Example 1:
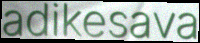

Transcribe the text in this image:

adikesava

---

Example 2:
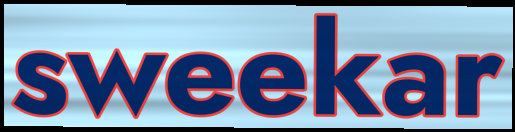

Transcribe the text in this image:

sweekar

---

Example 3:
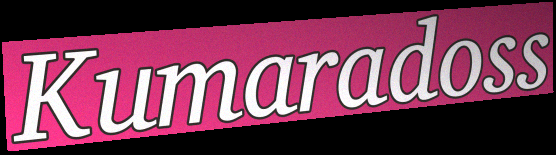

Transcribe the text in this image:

Kumaradoss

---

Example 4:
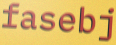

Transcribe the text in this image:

fasebj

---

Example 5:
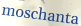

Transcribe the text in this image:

moschanta